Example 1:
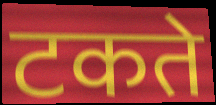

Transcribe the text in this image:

टकते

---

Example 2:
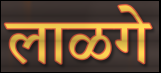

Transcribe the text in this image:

लाळगे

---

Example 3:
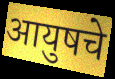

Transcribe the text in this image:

आयुषचे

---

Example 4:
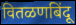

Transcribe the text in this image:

वितळणबिंदू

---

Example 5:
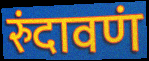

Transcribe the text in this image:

रुंदावणं